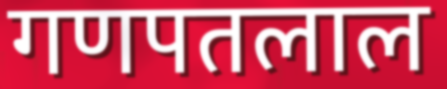
गणपतलाल